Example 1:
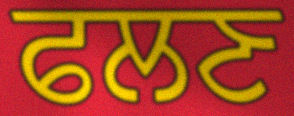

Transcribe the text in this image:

ਫਲਣ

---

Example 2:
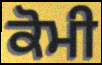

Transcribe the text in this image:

ਕੋਮੀ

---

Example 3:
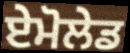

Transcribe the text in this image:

ਏਮੋਲੇਡ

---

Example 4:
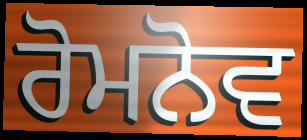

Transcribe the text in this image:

ਰੋਮਨੋਵ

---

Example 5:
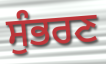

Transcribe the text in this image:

ਸੁੰਭਰਣ